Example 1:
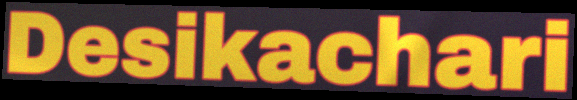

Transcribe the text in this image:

Desikachari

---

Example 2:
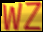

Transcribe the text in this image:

WZ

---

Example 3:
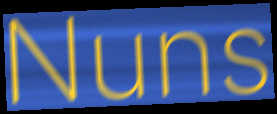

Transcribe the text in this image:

Nuns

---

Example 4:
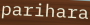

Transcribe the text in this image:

parihara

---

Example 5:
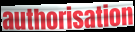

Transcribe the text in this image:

authorisation